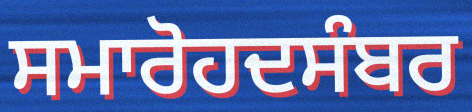
ਸਮਾਰੋਹਦਸੰਬਰ